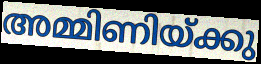
അമ്മിണിയ്ക്കു